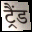
ट्रैंड